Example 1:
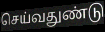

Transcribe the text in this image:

செய்வதுண்டு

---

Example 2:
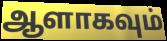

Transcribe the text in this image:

ஆளாகவும்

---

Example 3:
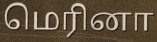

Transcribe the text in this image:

மெரினா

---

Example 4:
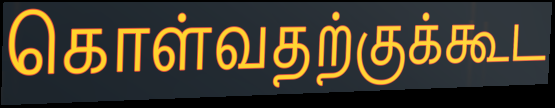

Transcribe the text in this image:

கொள்வதற்குக்கூட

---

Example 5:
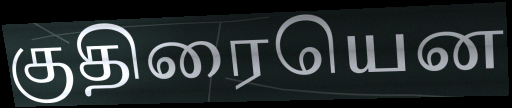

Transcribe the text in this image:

குதிரையென